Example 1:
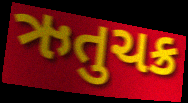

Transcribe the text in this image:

ઋતુચક્ર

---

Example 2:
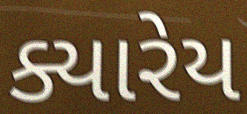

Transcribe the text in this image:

ક્યારેય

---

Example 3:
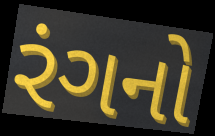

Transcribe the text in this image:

રંગનો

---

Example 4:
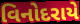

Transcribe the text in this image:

વિનોદરાયે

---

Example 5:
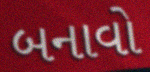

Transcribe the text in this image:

બનાવો